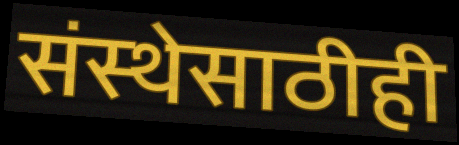
संस्थेसाठीही